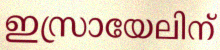
ഇസ്രായേലിന്